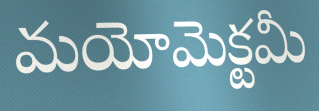
మయోమెక్టమీ